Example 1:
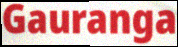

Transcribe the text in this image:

Gauranga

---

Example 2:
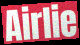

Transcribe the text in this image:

Airlie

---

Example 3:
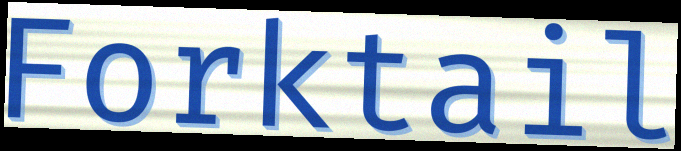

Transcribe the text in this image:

Forktail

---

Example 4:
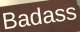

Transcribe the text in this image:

Badass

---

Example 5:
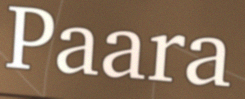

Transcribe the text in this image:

Paara